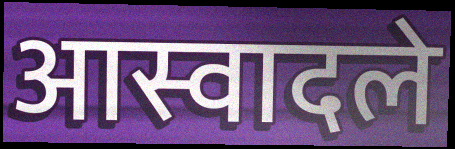
आस्वादले